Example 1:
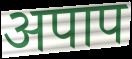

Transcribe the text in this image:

अपाप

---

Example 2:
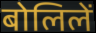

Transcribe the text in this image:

बोलिलें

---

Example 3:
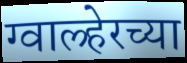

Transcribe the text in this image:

ग्वाल्हेरच्या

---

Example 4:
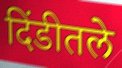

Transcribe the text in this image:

दिंडीतले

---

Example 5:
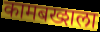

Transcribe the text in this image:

कामबख्शला